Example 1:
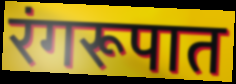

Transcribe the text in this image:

रंगरूपात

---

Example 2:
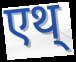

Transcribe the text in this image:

एथ्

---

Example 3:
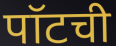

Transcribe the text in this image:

पॉटची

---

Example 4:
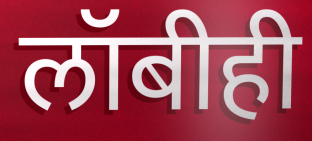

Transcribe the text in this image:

लॉबीही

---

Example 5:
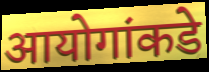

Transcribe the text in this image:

आयोगांकडे